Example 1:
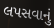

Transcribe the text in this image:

લપસવાનું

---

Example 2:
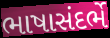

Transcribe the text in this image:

ભાષાસંદર્ભે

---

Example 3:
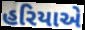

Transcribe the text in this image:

હરિયાએ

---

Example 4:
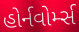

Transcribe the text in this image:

હોર્નવોર્મ્સ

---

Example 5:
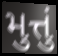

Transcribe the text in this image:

મુત્તું